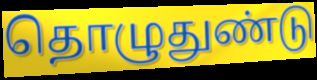
தொழுதுண்டு